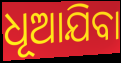
ଧୂଆଯିବା